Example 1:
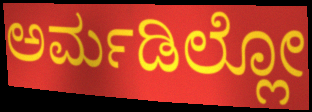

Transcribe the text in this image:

ಅರ್ಮಡಿಲ್ಲೋ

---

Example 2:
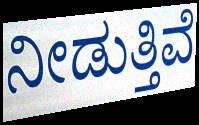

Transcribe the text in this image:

ನೀಡುತ್ತಿವೆ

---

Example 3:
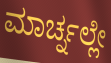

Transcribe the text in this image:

ಮಾರ್ಚ್ನಲ್ಲೇ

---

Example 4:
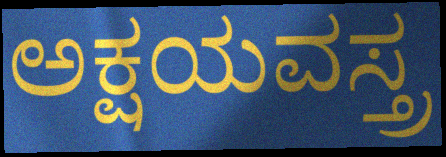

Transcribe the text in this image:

ಅಕ್ಷಯವಸ್ತ್ರ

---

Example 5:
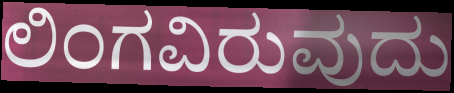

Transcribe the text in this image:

ಲಿಂಗವಿರುವುದು